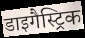
डाइगैस्ट्रिक